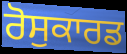
ਰੋਸੁਕਾਰਡ